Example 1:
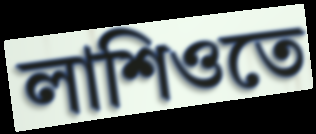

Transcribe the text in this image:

লাশিওতে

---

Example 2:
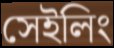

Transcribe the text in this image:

সেইলিং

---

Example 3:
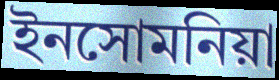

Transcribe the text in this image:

ইনসোমনিয়া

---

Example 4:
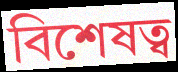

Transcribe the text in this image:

বিশেষত্ব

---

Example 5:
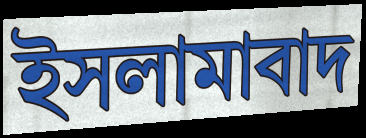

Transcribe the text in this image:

ইসলামাবাদ